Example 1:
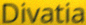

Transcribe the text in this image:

Divatia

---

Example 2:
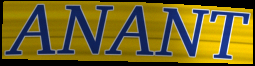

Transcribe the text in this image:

ANANT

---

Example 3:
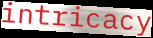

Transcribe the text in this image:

intricacy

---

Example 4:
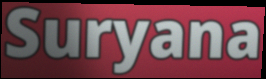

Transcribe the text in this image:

Suryana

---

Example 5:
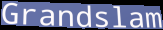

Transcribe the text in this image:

Grandslam